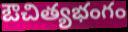
ఔచిత్యభంగం